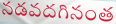
నడవదగినంత